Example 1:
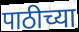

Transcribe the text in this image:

पाठीच्या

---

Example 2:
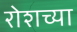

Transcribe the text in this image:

रोशच्या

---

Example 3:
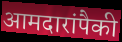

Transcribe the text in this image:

आमदारांपैकी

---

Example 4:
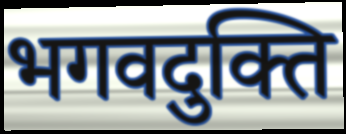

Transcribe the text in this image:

भगवदुक्ति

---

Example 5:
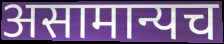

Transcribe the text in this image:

असामान्यच